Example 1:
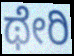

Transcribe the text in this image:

ಥೇರಿ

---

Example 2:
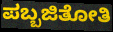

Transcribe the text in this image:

ಪಬ್ಬಜಿತೋತಿ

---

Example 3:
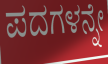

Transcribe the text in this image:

ಪದಗಳನ್ನೇ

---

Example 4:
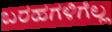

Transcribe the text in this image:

ಬರಹಗಳಿಗೆಲ್ಲ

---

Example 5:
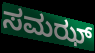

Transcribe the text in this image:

ಸಮಝ್